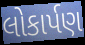
લોકાર્પણ